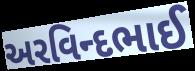
અરવિન્દભાઈ